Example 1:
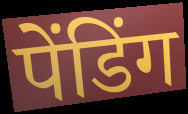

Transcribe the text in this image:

पेंडिंग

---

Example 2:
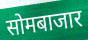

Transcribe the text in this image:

सोमबाजार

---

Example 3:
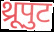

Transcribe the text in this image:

थ्रूपुट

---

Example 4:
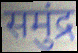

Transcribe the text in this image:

समुंद्र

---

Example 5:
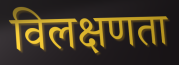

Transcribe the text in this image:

विलक्षणता